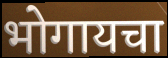
भोगायचा